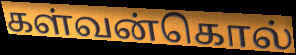
கள்வன்கொல்